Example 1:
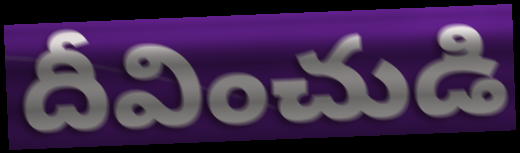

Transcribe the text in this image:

దీవించుడి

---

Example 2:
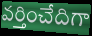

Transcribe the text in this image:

వర్తించేదిగా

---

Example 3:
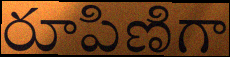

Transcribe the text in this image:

రూపిణిగా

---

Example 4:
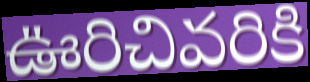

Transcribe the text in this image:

ఊరిచివరికి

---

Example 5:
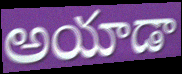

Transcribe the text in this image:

అయాడా